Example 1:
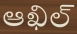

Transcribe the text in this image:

ఆఖిల్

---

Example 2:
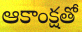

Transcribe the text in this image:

ఆకాంక్షతో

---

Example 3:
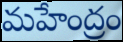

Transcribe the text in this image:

మహేంద్రం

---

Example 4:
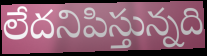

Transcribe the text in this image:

లేదనిపిస్తున్నది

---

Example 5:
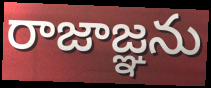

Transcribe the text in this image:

రాజాజ్ఞను